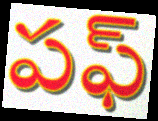
పఫ్